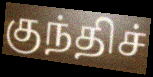
குந்திச்